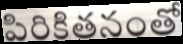
పిరికితనంతో